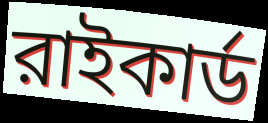
রাইকার্ড